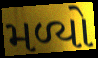
મળ્યો